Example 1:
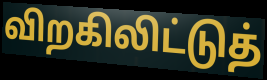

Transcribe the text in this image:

விறகிலிட்டுத்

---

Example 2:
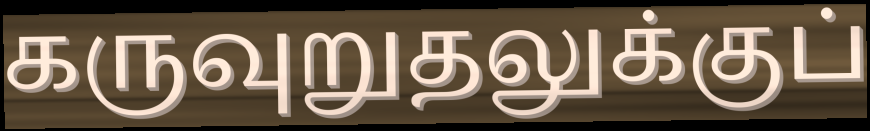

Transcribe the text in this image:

கருவுறுதலுக்குப்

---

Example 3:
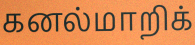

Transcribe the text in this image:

கனல்மாறிக்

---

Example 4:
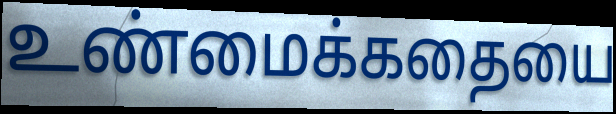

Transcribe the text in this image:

உண்மைக்கதையை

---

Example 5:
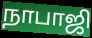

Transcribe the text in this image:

நாபாஜி